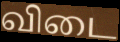
விடை